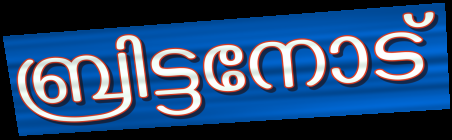
ബ്രിട്ടനോട്